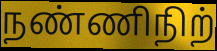
நண்ணிநிற்